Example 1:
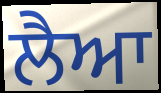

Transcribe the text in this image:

ਲੈਆ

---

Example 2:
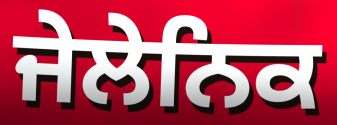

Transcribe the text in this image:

ਜੇਲੇਨਿਕ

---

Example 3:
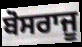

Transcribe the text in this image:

ਬੋਸਰਾਜੂ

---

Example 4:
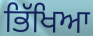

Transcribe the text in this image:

ਭਿੱਖਿਆ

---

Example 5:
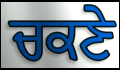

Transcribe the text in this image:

ਚਕਣੇ